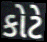
કોટે